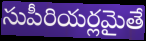
సుపీరియర్లమైతే